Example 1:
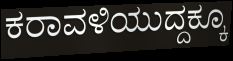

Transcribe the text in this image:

ಕರಾವಳಿಯುದ್ದಕ್ಕೂ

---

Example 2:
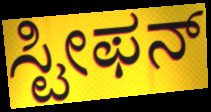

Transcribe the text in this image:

ಸ್ಟೀಫನ್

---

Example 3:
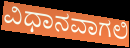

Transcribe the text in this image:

ವಿಧಾನವಾಗಲಿ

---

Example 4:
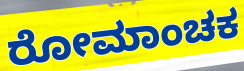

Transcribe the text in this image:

ರೋಮಾಂಚಕ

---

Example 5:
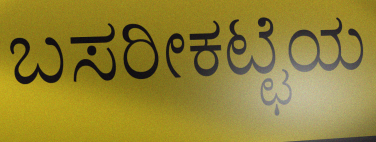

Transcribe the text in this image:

ಬಸರೀಕಟ್ಟೆಯ